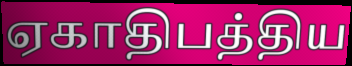
ஏகாதிபத்திய